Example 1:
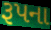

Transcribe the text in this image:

રૂપના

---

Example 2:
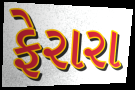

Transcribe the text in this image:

ફેરારા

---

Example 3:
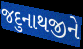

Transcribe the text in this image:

જદુનાથજીને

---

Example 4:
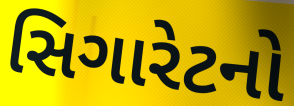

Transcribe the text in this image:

સિગારેટનો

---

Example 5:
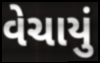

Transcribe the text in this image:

વેચાયું